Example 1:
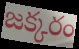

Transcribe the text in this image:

జక్కరం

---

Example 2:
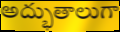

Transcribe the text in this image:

అద్భుతాలుగా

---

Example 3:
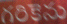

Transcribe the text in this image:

గరికెను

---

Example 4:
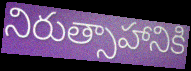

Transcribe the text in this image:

నిరుత్సాహానికి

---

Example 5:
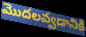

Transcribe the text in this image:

మొదలవ్వడానికి